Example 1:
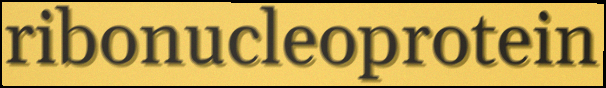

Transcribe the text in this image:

ribonucleoprotein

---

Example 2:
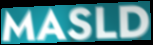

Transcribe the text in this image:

MASLD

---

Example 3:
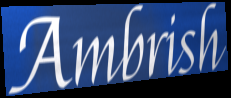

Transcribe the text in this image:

Ambrish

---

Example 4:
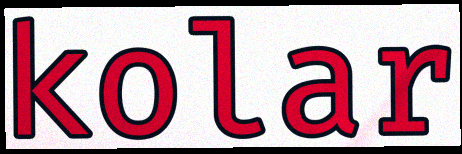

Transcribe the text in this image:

kolar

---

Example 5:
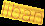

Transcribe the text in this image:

liban